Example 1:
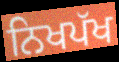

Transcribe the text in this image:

ਨਿਖਪੱਖ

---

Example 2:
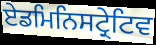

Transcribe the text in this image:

ਏਡਮਿਨਿਸਟ੍ਰੇਟਿਵ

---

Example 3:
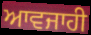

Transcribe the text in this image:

ਆਵਜਾਹੀ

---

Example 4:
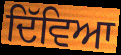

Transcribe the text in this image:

ਦਿੱਵਿਆ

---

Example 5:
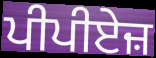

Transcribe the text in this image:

ਪੀਪੀਏਜ਼